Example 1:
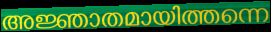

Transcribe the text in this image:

അജ്ഞാതമായിത്തന്നെ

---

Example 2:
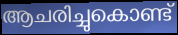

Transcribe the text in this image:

ആചരിച്ചുകൊണ്ട്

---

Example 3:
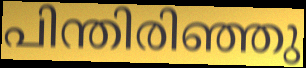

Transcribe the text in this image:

പിന്തിരിഞ്ഞു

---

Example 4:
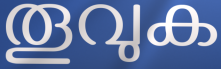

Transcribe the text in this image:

തൂവുക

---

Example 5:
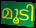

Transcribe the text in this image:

മൂടി